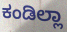
ಕಂಡಿಲ್ಲಾ